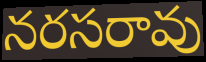
నరసరావు